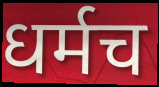
धर्मच